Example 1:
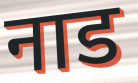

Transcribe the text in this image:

नाड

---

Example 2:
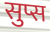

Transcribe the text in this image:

सुप्स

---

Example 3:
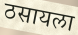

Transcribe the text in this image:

ठसायला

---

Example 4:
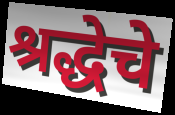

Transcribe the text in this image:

श्रद्धेचे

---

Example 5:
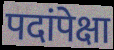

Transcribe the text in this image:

पदांपेक्षा